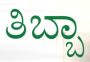
ತಿಬ್ಬಾ